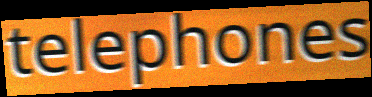
telephones